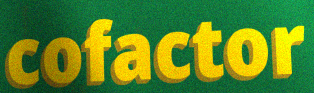
cofactor